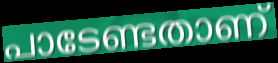
പാടേണ്ടതാണ്